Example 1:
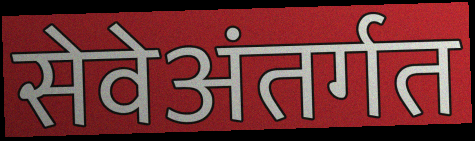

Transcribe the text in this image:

सेवेअंतर्गत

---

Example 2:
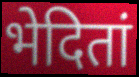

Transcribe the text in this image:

भेदितां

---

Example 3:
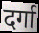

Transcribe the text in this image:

दर्गा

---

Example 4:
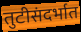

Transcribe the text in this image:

तुटीसंदर्भात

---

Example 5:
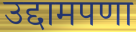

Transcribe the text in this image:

उद्दामपणा